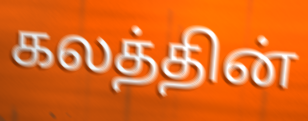
கலத்தின்